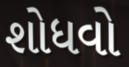
શોધવો